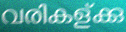
വരികള്ക്കു